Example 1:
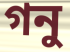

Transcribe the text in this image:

গনু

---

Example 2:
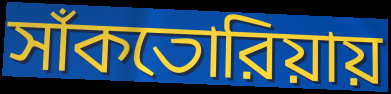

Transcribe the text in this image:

সাঁকতোরিয়ায়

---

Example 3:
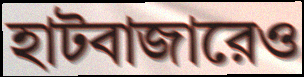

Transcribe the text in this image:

হাটবাজারেও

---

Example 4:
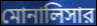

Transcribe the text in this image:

মোনালিসার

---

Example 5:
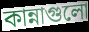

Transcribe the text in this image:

কান্নাগুলো